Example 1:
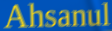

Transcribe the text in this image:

Ahsanul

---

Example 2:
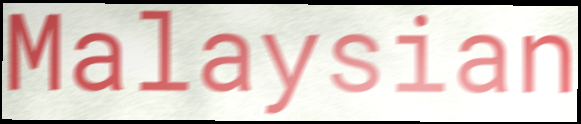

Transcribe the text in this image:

Malaysian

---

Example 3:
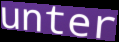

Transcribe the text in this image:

unter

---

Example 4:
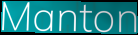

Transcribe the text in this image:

Manton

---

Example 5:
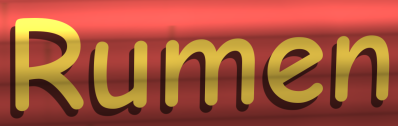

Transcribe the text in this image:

Rumen